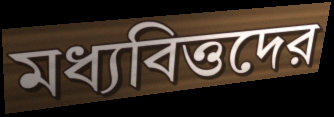
মধ্যবিত্তদের